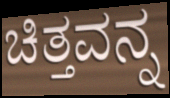
ಚಿತ್ತವನ್ನ